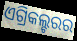
ଏଗ୍ରିକଲ୍ଚରର